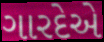
ગારદેએ